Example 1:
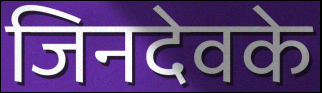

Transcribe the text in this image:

जिनदेवके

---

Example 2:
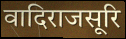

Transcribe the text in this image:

वादिराजसूरि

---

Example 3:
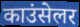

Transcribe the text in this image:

काउंसेलर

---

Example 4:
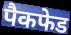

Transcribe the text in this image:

पैकफेड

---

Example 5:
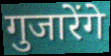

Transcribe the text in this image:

गुजारेंगे